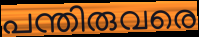
പന്തിരുവരെ